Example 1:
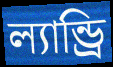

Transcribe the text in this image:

ল্যান্ড্রি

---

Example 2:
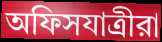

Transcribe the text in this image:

অফিসযাত্রীরা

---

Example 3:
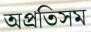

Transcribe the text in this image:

অপ্রতিসম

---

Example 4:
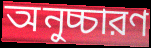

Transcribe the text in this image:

অনুচ্চারণ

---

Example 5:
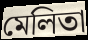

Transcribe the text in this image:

মেলিতা